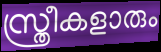
സ്ത്രീകളാരും